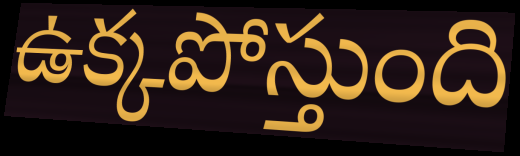
ఉక్కపోస్తుంది